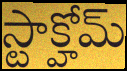
స్టాక్హోమ్